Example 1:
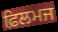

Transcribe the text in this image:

ਫ਼ਿਲਮਜ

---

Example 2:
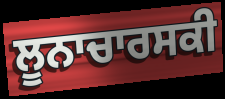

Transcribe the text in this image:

ਲੂਨਾਚਾਰਸਕੀ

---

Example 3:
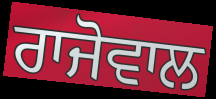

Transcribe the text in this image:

ਰਾਜੋਵਾਲ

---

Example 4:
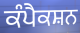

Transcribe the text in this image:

ਕੰਪੈਕਸ਼ਨ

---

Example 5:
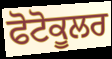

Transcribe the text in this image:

ਫੋਟੋਕੂਲਰ